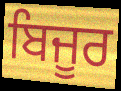
ਬਿਜੂਰ